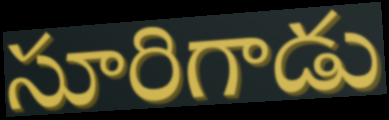
సూరిగాడు